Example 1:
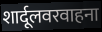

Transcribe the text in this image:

शार्दूलवरवाहना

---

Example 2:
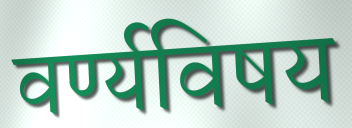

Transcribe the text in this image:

वर्ण्यविषय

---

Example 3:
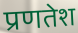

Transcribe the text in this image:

प्रणतेश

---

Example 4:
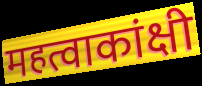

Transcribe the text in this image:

महत्वाकांक्षी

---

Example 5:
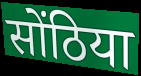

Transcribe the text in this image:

सोंठिया